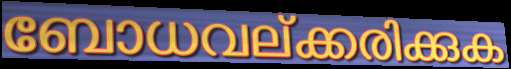
ബോധവല്ക്കരിക്കുക